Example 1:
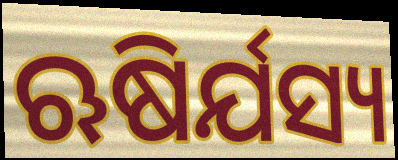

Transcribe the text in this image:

ଋଷିର୍ଯସ୍ୟ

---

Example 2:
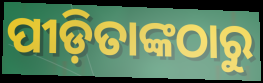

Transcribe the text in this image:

ପୀଡ଼ିତାଙ୍କଠାରୁ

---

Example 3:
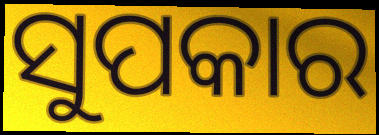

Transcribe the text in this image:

ସୁପକାର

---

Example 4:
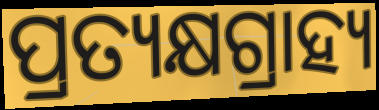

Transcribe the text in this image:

ପ୍ରତ୍ୟକ୍ଷଗ୍ରାହ୍ୟ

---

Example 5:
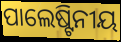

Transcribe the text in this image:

ପାଲେଷ୍ଟିନୀୟ